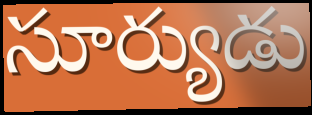
సూర్యుడు